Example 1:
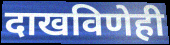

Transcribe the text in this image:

दाखविणेही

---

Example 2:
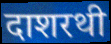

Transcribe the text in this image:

दाशरथी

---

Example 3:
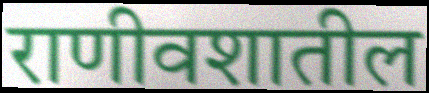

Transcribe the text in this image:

राणीवशातील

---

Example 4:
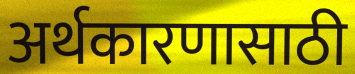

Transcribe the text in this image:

अर्थकारणासाठी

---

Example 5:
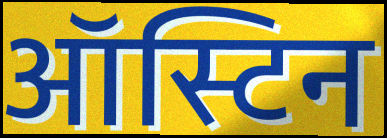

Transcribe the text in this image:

ऑस्टिन